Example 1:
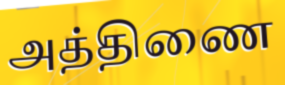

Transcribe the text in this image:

அத்திணை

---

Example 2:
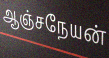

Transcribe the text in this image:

ஆஞ்சநேயன்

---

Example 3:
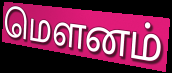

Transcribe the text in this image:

மௌனம்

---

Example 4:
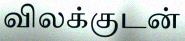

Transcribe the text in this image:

விலக்குடன்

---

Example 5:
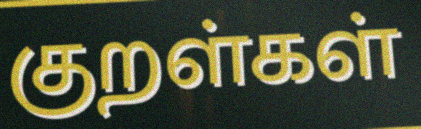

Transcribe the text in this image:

குறள்கள்